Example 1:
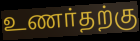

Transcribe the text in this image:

உணர்தற்கு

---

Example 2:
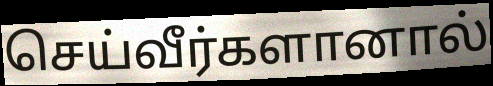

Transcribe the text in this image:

செய்வீர்களானால்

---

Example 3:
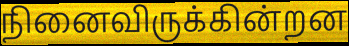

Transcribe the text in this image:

நினைவிருக்கின்றன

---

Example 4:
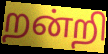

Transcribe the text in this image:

றன்றி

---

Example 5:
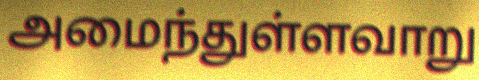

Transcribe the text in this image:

அமைந்துள்ளவாறு